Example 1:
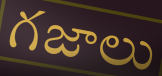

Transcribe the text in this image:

గజాలు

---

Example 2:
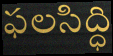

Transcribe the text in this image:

ఫలసిద్ధి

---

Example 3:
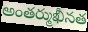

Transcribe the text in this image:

అంతర్ముఖీనత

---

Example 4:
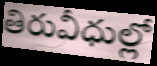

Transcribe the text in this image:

తిరువీధుల్లో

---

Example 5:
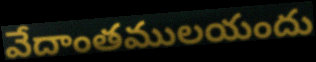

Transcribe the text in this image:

వేదాంతములయందు